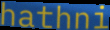
hathni